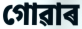
গোৱাৰ